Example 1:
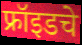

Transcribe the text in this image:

फ्रॉइडचे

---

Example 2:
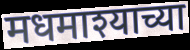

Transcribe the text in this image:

मधमाश्याच्या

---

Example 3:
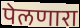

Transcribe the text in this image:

पेलणारा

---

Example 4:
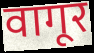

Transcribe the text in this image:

वागूर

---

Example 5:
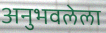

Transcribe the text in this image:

अनुभवलेला